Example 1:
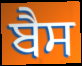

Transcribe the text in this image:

ਬੈਸ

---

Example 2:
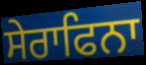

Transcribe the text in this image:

ਸੇਰਾਫਿਨਾ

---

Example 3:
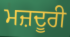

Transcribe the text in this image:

ਮਜ਼ਦੂਰੀ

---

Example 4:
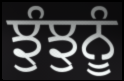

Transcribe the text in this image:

ਝੁੰਝੁਨੂੰ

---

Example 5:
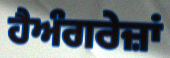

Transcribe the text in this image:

ਹੈਅੰਗਰੇਜ਼ਾਂ